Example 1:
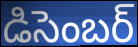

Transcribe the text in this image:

డిసెంబర్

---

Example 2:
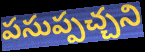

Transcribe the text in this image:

పసుప్పచ్చని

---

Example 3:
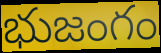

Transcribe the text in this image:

భుజంగం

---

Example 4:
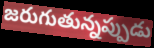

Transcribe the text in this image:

జరుగుతున్నప్పుడు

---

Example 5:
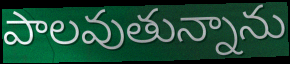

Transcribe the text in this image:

పాలవుతున్నాను